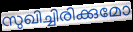
സുഖിച്ചിരിക്കുമോ